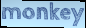
monkey